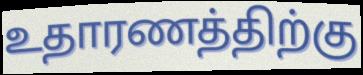
உதாரணத்திற்கு